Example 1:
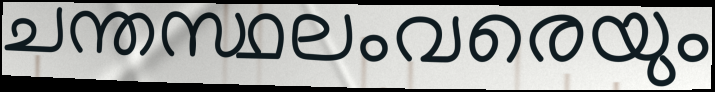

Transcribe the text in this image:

ചന്തസ്ഥലംവരെയും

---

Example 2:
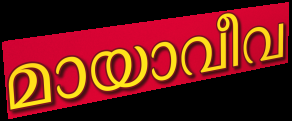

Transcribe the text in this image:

മായാവീവ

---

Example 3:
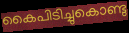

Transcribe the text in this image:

കൈപിടിച്ചുകൊണ്ടു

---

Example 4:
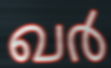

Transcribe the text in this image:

ഖർ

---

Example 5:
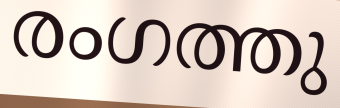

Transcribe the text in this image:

രംഗത്തു